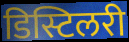
डिस्टिलरी